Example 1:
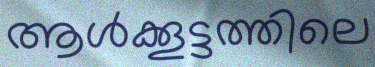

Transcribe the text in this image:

ആൾക്കൂട്ടത്തിലെ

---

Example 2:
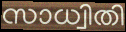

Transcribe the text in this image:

സാധ്വിതി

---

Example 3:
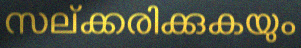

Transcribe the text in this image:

സല്ക്കരിക്കുകയും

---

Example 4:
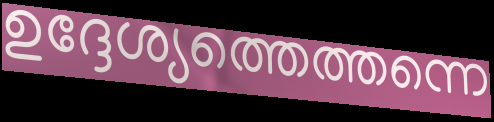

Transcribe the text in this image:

ഉദ്ദേശ്യത്തെത്തന്നെ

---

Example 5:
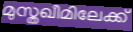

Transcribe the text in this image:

മുസ്തഖീമിലേക്ക്